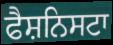
ਫੈਸ਼ਨਿਸਟਾ